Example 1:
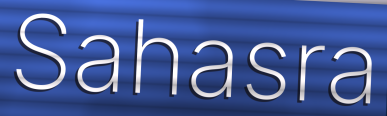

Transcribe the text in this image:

Sahasra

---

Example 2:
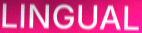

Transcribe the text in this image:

LINGUAL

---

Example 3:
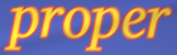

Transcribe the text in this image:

proper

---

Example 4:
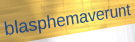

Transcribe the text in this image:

blasphemaverunt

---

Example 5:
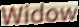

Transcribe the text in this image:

Widow